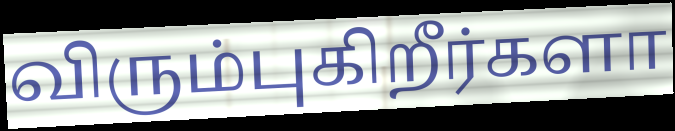
விரும்புகிறீர்களா